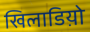
खिलाडिय़ो